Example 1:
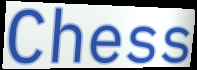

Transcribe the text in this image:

Chess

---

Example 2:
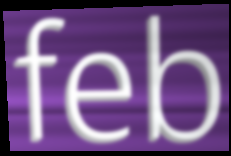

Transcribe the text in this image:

feb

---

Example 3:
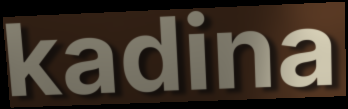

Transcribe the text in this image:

kadina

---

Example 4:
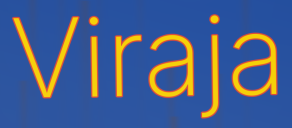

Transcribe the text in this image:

Viraja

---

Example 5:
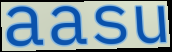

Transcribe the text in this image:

aasu